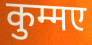
कुम्मए